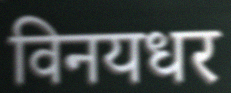
विनयधर